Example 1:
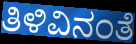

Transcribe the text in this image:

ತಿಳಿವಿನಂತೆ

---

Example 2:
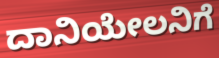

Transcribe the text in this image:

ದಾನಿಯೇಲನಿಗೆ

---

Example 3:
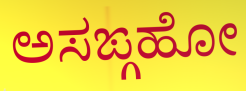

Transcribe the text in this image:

ಅಸಙ್ಗಹೋ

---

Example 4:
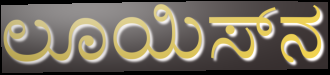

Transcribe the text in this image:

ಲೂಯಿಸ್‌ನ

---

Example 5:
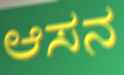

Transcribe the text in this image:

ಆಸನ